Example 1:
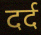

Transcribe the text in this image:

दर्द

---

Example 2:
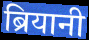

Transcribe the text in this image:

ब्रियानी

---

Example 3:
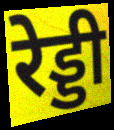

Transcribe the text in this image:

रेड्डी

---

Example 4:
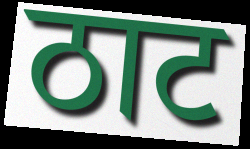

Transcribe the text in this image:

ठाट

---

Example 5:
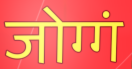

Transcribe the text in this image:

जोग्गं